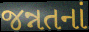
જન્નતનાં